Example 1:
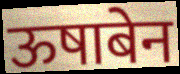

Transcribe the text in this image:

ऊषाबेन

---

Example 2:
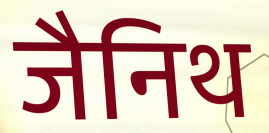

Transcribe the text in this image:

जैनिथ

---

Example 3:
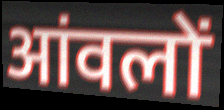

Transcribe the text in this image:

आंवलों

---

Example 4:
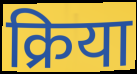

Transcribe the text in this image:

क्रिया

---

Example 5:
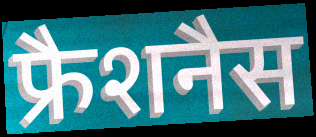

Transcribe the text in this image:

फ्रैशनैस